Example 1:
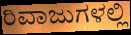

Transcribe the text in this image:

ರಿವಾಜುಗಳಲ್ಲಿ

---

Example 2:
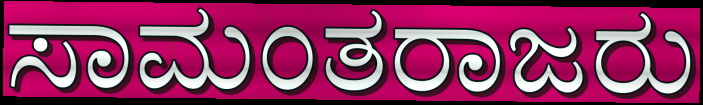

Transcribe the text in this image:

ಸಾಮಂತರಾಜರು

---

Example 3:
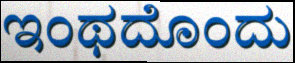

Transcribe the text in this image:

ಇಂಥದೊಂದು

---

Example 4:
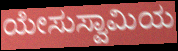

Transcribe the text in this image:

ಯೇಸುಸ್ವಾಮಿಯ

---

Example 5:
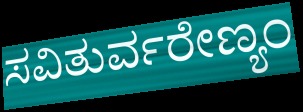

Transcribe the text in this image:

ಸವಿತುರ್ವರೇಣ್ಯಂ